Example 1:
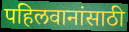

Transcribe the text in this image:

पहिलवानांसाठी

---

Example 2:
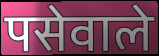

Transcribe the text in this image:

पसेवाले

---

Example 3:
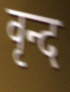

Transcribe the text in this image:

वृन्द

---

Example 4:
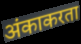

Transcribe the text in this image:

अंकाकरता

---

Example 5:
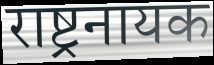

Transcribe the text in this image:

राष्ट्रनायक